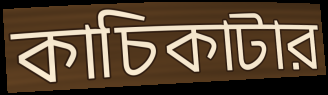
কাচিকাটার